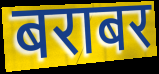
बराबर